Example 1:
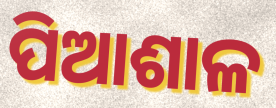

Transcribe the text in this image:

ପିଆଶାଳ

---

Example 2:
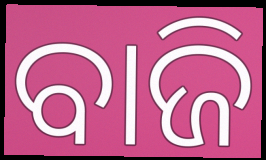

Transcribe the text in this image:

ବାଜି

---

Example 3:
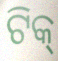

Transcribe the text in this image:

ଟିକ୍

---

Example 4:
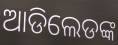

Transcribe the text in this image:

ଆଡିଲେଡଙ୍କ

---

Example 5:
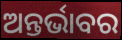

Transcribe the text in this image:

ଅନ୍ତର୍ଭାବର